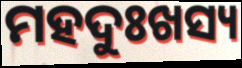
ମହଦୁଃଖସ୍ୟ